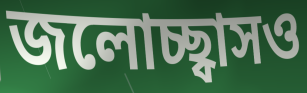
জলোচ্ছ্বাসও